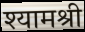
श्यामश्री